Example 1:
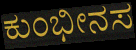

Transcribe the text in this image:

ಕುಂಭೀನಸ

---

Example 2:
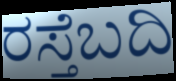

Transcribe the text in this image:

ರಸ್ತೆಬದಿ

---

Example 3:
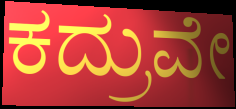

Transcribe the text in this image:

ಕದ್ರುವೇ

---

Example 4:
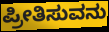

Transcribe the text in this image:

ಪ್ರೀತಿಸುವನು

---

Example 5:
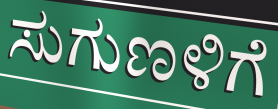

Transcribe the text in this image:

ಸುಗುಣಳಿಗೆ